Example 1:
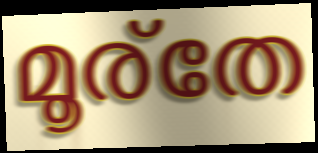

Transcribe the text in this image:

മൂര്തേ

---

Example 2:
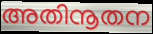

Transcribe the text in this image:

അതിനൂതന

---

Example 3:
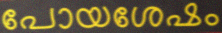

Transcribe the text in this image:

പോയശേഷം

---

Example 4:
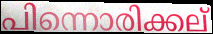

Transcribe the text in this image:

പിന്നൊരിക്കല്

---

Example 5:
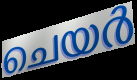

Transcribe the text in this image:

ചെയർ